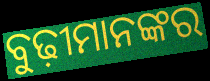
ବୁଢ଼ୀମାନଙ୍କର